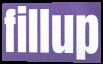
fillup